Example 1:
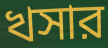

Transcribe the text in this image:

খসার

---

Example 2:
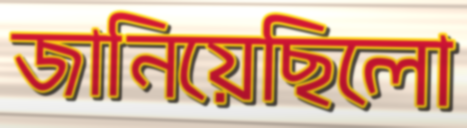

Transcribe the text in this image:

জানিয়েছিলো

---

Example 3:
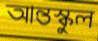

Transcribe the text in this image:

আন্তস্কুল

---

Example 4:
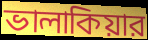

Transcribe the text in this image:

ভালাকিয়ার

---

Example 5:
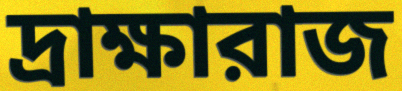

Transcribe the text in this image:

দ্রাক্ষারাজ